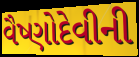
વૈષ્ણોદેવીની